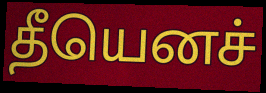
தீயெனச்